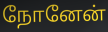
நோனேன்